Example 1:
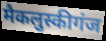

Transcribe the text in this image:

मैकलुस्कीगंज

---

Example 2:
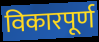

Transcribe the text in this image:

विकारपूर्ण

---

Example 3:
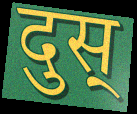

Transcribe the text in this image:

दुस्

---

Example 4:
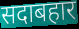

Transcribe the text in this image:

सदाबहार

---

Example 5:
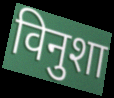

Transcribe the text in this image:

विनुशा